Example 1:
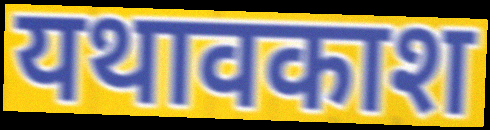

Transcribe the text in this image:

यथावकाश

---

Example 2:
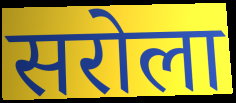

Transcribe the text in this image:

सरोला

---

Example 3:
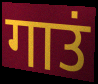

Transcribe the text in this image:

गाउं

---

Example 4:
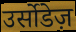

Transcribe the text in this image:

उर्सोडेज़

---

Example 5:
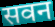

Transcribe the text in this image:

सवन